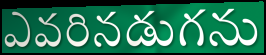
ఎవరినడుగను